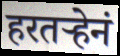
हरतर्‍हेनं